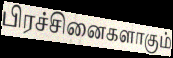
பிரச்சினைகளாகும்